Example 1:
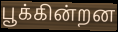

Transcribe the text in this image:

பூக்கின்றன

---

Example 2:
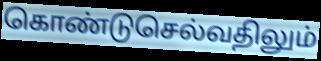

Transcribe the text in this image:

கொண்டுசெல்வதிலும்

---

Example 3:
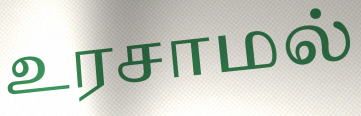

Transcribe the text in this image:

உரசாமல்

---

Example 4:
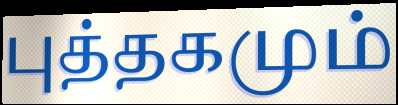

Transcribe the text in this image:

புத்தகமும்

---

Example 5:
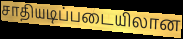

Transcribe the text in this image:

சாதியடிப்படையிலான